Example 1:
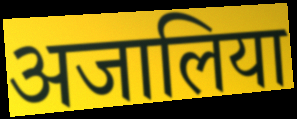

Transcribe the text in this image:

अजालिया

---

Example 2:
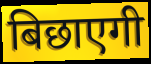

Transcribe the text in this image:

बिछाएगी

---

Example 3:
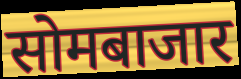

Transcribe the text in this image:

सोमबाजार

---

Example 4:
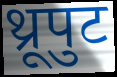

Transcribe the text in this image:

थ्रूपुट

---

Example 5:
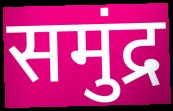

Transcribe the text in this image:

समुंद्र